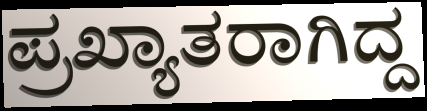
ಪ್ರಖ್ಯಾತರಾಗಿದ್ದ